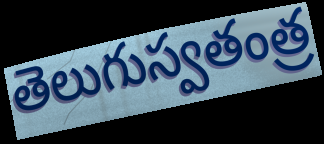
తెలుగుస్వతంత్ర